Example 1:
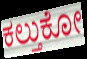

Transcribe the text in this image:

ಕಲ್ತುಕೋ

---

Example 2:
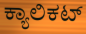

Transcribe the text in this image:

ಕ್ಯಾಲಿಕಟ್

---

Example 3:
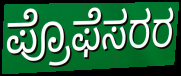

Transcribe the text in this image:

ಪ್ರೊಫೆಸರರ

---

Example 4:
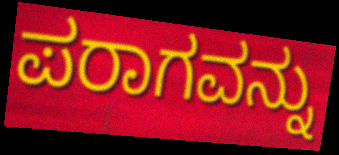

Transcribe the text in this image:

ಪರಾಗವನ್ನು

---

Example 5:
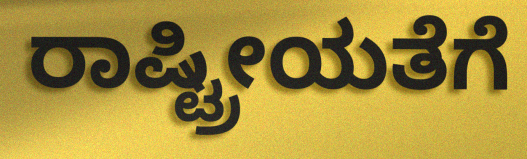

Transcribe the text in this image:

ರಾಷ್ಟ್ರೀಯತೆಗೆ